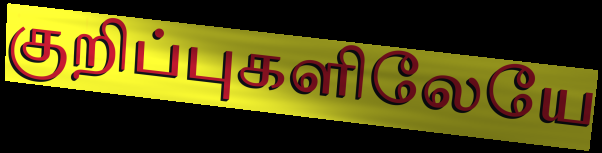
குறிப்புகளிலேயே